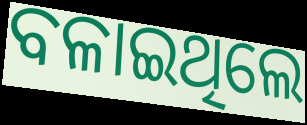
ବଳାଇଥିଲେ